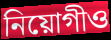
নিয়োগীও